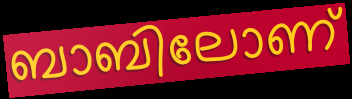
ബാബിലോണ്